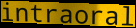
intraoral